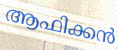
ആഫിക്കൻ